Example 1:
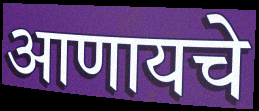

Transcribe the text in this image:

आणायचे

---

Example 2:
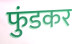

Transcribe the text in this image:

फुंडकर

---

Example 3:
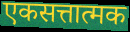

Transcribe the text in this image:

एकसत्तात्मक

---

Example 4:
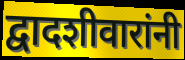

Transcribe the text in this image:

द्वादशीवारांनी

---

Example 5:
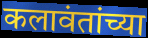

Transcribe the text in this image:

कलावंतांच्या